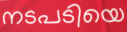
നടപടിയെ